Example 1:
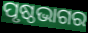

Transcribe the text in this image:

ପୃଷ୍ଠଭାଗର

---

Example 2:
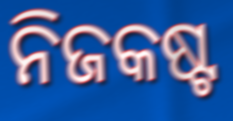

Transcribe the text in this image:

ନିଜକଷ୍ଟ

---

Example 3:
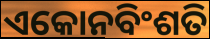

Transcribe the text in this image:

ଏକୋନବିଂଶତି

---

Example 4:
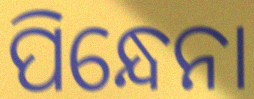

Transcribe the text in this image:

ପିନ୍ଧେନା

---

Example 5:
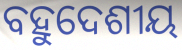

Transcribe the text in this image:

ବହୁଦେଶୀୟ